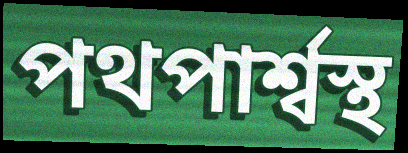
পথপার্শ্বস্থ